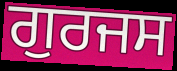
ਗੁਰਜਸ